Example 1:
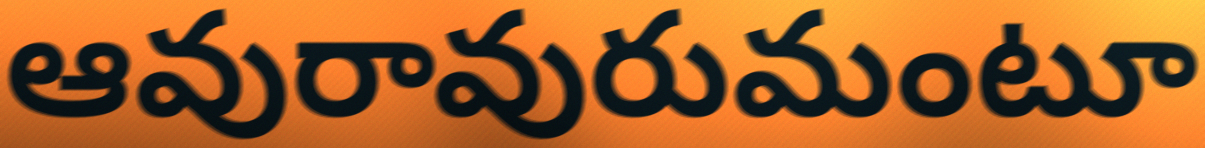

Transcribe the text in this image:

ఆవురావురుమంటూ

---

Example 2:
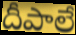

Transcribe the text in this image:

దీపాలే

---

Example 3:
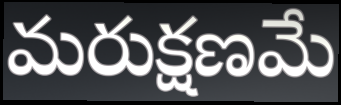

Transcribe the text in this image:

మరుక్షణమే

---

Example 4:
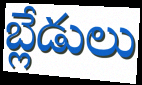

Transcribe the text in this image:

బ్లేడులు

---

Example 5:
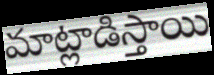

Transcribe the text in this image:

మాట్లాడిస్తాయి